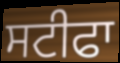
ਸਟੀਫਾ